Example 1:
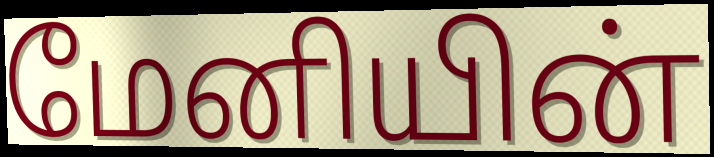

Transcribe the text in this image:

மேனியின்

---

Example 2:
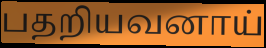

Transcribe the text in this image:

பதறியவனாய்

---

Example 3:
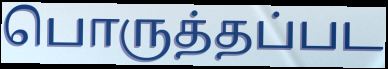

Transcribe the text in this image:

பொருத்தப்பட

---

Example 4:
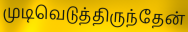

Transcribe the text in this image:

முடிவெடுத்திருந்தேன்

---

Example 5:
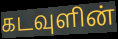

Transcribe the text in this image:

கடவுளின்